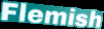
Flemish